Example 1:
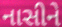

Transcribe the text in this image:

નાસીને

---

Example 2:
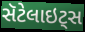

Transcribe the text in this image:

સૅટેલાઇટ્સ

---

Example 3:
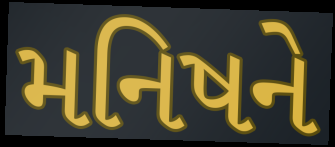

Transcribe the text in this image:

મનિષને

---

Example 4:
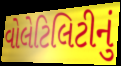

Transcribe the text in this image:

વોલેટિલિટીનું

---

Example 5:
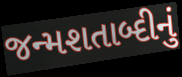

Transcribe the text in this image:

જન્મશતાબ્દીનું